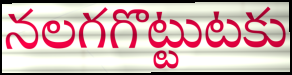
నలగగొట్టుటకు